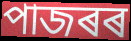
পাজৰৰ